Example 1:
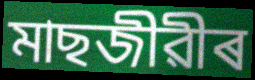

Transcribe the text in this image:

মাছজীৱীৰ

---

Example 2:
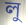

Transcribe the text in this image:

লু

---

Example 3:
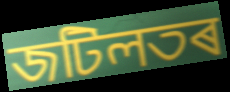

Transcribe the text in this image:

জটিলতৰ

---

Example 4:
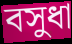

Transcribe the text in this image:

বসুধা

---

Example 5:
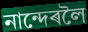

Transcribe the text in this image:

নান্দেৰলৈ